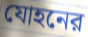
যোহনের